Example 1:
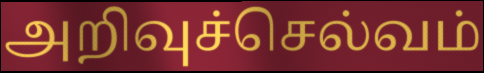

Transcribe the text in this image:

அறிவுச்செல்வம்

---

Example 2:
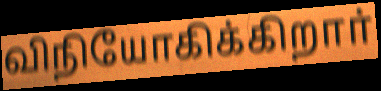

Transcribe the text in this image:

விநியோகிக்கிறார்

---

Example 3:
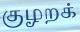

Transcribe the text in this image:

குழறக்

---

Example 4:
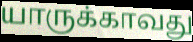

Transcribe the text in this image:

யாருக்காவது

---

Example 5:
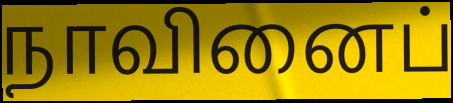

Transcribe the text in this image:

நாவினைப்